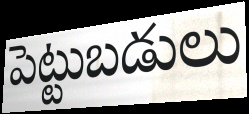
పెట్టుబడులు